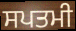
ਸਪਤਮੀ